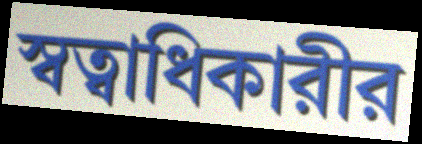
স্বত্বাধিকারীর